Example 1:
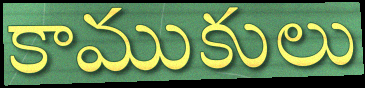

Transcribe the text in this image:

కాముకులు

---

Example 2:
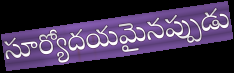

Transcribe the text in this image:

సూర్యోదయమైనప్పుడు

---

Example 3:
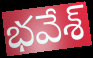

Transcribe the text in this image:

భవేశ్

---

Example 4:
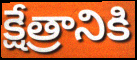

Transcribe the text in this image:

క్షేత్రానికి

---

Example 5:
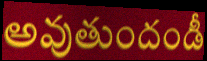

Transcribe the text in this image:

అవుతుందండీ